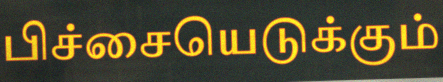
பிச்சையெடுக்கும்